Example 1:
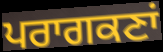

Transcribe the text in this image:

ਪਰਾਗਕਣਾਂ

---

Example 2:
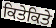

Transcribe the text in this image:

ਕਿਤੇਕਿਤੇ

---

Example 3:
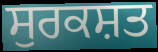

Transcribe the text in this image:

ਸੁਰਕਸ਼ਤ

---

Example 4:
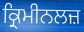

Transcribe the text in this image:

ਕ੍ਰਿਮੀਨਲਜ਼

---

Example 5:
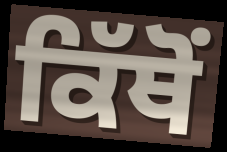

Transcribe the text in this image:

ਕਿੱਥੋੰ